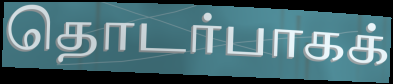
தொடர்பாகக்